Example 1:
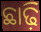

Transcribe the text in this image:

ଛାଢ଼ି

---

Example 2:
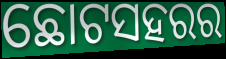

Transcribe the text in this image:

ଛୋଟସହରର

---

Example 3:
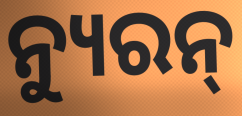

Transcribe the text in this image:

ନ୍ୟୁରନ୍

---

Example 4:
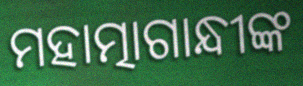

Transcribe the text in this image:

ମହାତ୍ମାଗାନ୍ଧୀଙ୍କ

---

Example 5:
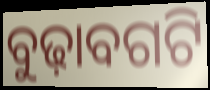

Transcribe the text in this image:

ବୁଢ଼ାବଗଟି